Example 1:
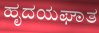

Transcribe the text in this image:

ಹೃದಯಘಾತ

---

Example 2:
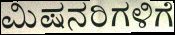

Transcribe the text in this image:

ಮಿಷನರಿಗಳಿಗೆ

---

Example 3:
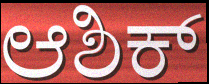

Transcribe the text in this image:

ಆಶಿಕ್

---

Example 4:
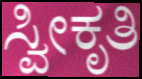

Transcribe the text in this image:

ಸ್ವೀಕೃತಿ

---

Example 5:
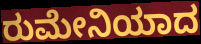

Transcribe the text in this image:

ರುಮೇನಿಯಾದ